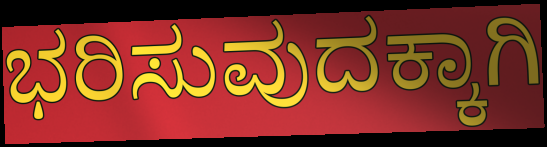
ಭರಿಸುವುದಕ್ಕಾಗಿ